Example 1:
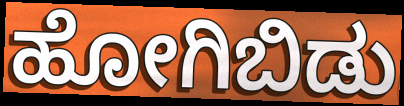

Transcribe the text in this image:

ಹೋಗಿಬಿಡು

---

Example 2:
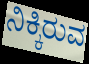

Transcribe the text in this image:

ನಿಕ್ಕಿರುವ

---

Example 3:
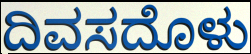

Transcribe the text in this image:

ದಿವಸದೊಳು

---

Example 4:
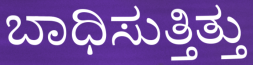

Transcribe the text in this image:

ಬಾಧಿಸುತ್ತಿತ್ತು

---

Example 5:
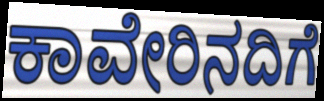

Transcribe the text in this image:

ಕಾವೇರಿನದಿಗೆ